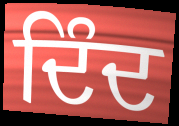
ਦਿੰਦ